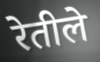
रेतीले